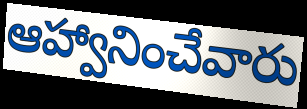
ఆహ్వానించేవారు